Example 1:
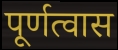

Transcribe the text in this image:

पूर्णत्वास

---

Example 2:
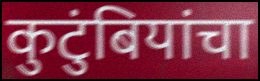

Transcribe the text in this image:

कुटुंबियांचा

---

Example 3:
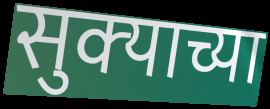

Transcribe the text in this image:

सुक्‍याच्या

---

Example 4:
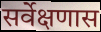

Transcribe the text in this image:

सर्वेक्षणास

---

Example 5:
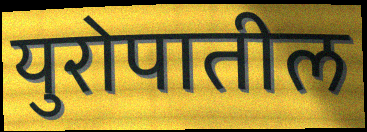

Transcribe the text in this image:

युरोपातील